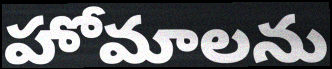
హోమాలను